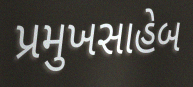
પ્રમુખસાહેબ